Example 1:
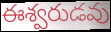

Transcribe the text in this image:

ఈశ్వరుడవు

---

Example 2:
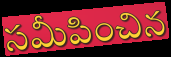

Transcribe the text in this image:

సమీపించిన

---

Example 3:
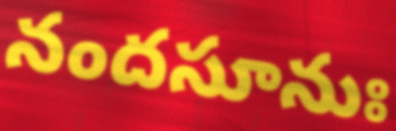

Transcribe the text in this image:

నందసూనుః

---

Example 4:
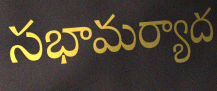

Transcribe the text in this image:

సభామర్యాద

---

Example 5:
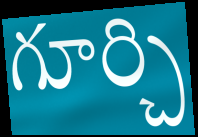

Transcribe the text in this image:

గూర్చి